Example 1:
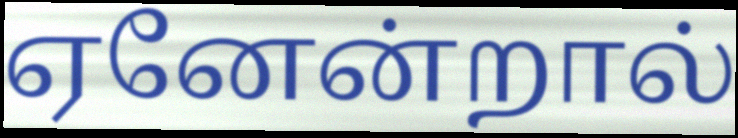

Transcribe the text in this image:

ஏனேன்றால்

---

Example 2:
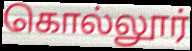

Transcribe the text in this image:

கொல்லூர்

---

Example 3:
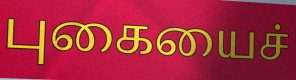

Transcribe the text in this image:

புகையைச்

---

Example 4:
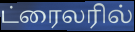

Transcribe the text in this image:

ட்ரைலரில்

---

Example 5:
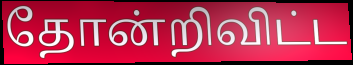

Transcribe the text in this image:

தோன்றிவிட்ட